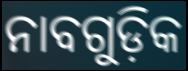
ନାବଗୁଡ଼ିକ